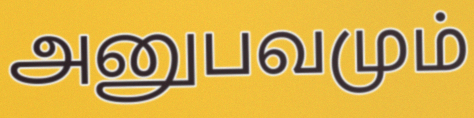
அனுபவமும்